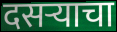
दसऱ्याचा